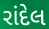
રાંદેલ